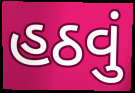
હઠવું